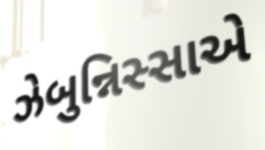
ઝેબુન્નિસ્સાએ